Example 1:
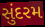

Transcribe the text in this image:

સુંદરમ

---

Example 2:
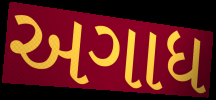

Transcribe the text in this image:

અગાધ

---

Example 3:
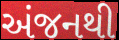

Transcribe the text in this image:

અંજનથી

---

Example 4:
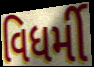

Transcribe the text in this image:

વિધર્મી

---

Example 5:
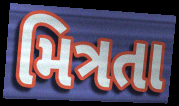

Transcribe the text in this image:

મિત્રતા